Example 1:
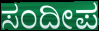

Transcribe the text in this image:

ಸಂದೀಪ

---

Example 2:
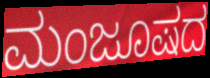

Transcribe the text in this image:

ಮಂಜೂಷದ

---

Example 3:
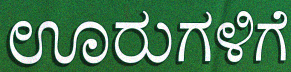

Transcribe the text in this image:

ಊರುಗಳಿಗೆ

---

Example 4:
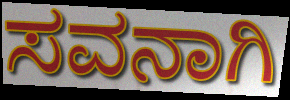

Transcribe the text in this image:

ಸವನಾಗಿ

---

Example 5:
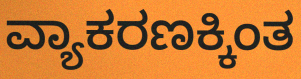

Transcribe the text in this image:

ವ್ಯಾಕರಣಕ್ಕಿಂತ